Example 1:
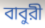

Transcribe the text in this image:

বাবুরী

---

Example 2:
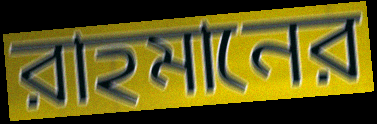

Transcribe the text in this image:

রাহমানের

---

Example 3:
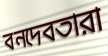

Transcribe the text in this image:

বনদেবতারা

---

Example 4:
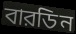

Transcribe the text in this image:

বারডিন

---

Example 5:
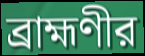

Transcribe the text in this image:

ব্রাহ্মণীর